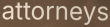
attorneys